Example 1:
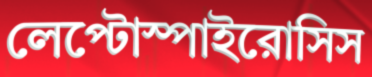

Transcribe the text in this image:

লেপ্টোস্পাইরোসিস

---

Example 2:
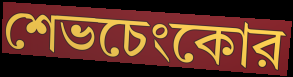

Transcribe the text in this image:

শেভচেংকোর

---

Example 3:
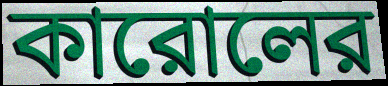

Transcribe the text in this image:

কারোলের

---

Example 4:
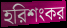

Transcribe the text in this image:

হরিশংকর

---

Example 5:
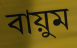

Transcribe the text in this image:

বায়ুম